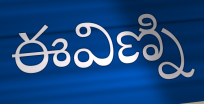
ఈవిణ్ని